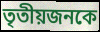
তৃতীয়জনকে